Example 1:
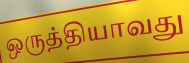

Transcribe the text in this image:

ஒருத்தியாவது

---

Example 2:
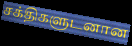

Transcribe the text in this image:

சக்திகளுடனான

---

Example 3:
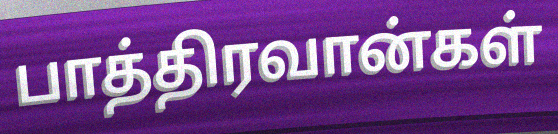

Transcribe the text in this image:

பாத்திரவான்கள்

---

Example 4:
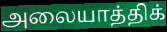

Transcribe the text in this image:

அலையாத்திக்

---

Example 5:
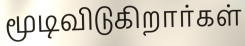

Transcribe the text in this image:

மூடிவிடுகிறார்கள்